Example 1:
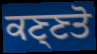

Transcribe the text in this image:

ਕਣ੍ਣਤੋ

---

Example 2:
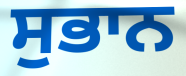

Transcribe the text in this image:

ਸੁਭਾਨ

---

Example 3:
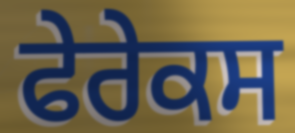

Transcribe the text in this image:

ਫੇਰੇਕਸ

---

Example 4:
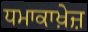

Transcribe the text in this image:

ਧਮਾਕਾਖ਼ੇਜ਼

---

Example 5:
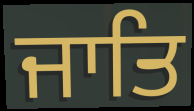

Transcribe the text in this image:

ਜਾਤਿ